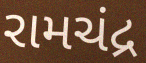
રામચંદ્ર